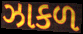
ઝાકળ